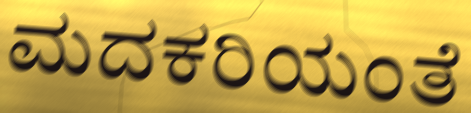
ಮದಕರಿಯಂತೆ